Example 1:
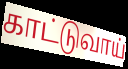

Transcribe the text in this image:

காட்டுவாய்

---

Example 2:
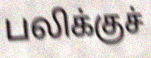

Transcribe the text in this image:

பலிக்குச்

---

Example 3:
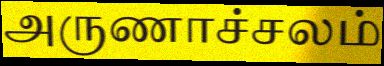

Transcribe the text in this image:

அருணாச்சலம்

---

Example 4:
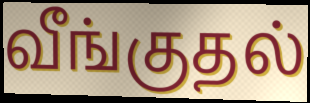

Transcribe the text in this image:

வீங்குதல்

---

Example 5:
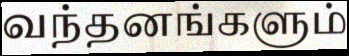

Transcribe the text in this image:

வந்தனங்களும்